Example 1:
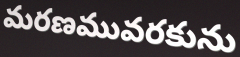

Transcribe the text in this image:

మరణమువరకును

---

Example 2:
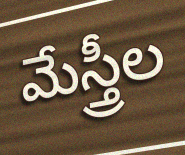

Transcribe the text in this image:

మేస్త్రీల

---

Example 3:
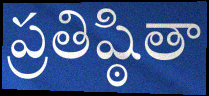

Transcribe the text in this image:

ప్రతిష్ఠితా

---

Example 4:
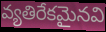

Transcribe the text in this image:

వ్యతిరేకమైనవి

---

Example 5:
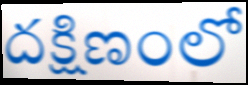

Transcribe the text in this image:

దక్షిణంలో